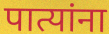
पात्यांना